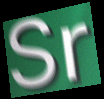
Sr